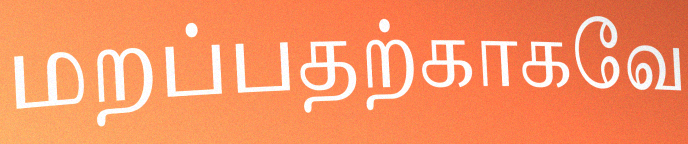
மறப்பதற்காகவே